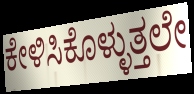
ಕೇಳಿಸಿಕೊಳ್ಳುತ್ತಲೇ